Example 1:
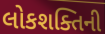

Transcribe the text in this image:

લોકશક્તિની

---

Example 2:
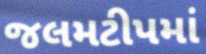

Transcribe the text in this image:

જલમટીપમાં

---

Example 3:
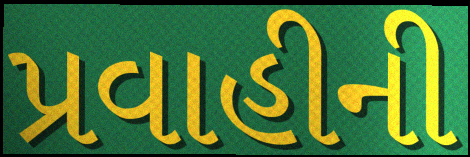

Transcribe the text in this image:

પ્રવાહીની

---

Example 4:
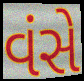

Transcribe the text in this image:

વંસે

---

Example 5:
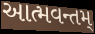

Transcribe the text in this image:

આત્મવન્તમ્